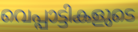
വെപ്പാട്ടികളുടെ